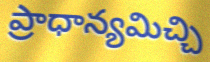
ప్రాధాన్యమిచ్చి